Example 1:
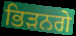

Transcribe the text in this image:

ਭਿੜਨਗੇ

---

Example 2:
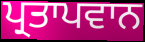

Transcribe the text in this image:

ਪ੍ਰਤਾਪਵਾਨ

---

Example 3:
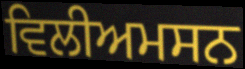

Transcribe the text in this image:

ਵਿਲੀਅਮਸਨ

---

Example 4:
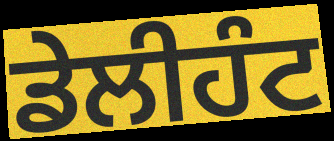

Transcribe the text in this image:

ਡੇਲੀਹੰਟ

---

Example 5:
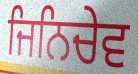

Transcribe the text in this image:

ਜਿਨਿਚੇਵ